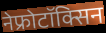
नेफ्रोटॉक्सिन